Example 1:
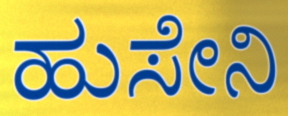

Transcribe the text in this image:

ಹುಸೇನಿ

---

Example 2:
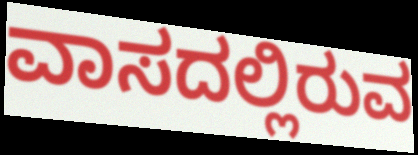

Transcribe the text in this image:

ವಾಸದಲ್ಲಿರುವ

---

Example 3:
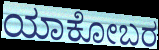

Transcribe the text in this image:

ಯಾಕೋಬರ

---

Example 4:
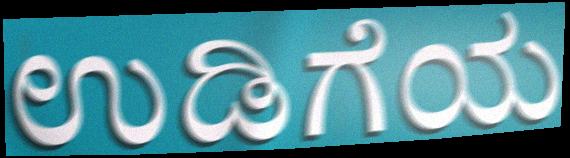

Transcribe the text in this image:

ಉಡಿಗೆಯ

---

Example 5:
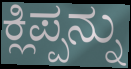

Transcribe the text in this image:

ಕ್ಲಿಪ್ಪನ್ನು